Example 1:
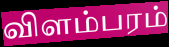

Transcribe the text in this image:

விளம்பரம்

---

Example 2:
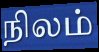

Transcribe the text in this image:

நிலம்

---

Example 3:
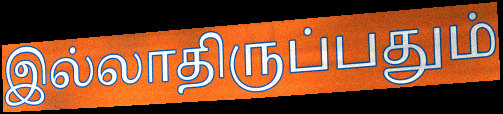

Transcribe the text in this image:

இல்லாதிருப்பதும்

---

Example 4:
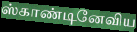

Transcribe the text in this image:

ஸ்காண்டினேவிய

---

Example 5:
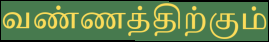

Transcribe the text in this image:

வண்ணத்திற்கும்